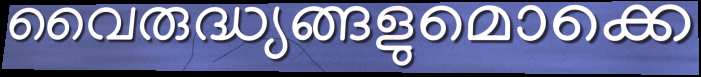
വൈരുദ്ധ്യങ്ങളുമൊക്കെ